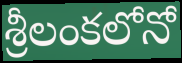
శ్రీలంకలోనో